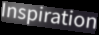
Inspiration